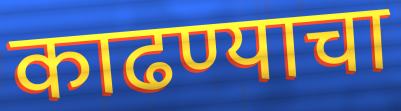
काढण्याचा